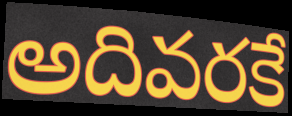
అదివరకే